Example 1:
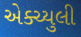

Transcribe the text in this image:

એક્ચ્યુલી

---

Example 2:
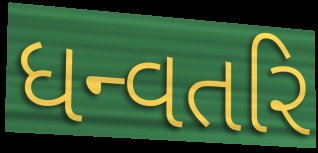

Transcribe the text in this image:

ધન્વતરિ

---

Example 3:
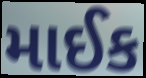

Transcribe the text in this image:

માઈક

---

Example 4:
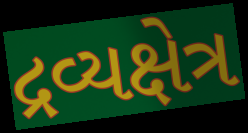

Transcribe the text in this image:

દ્રવ્યક્ષેત્ર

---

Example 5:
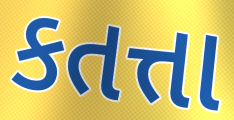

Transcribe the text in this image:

કતત્તા